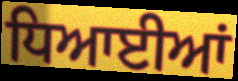
ਧਿਆਈਆਂ